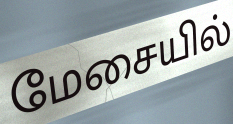
மேசையில்